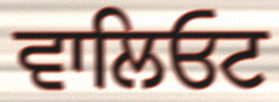
ਵਾਲਿਓਟ